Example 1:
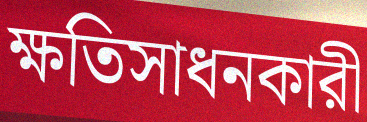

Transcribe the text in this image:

ক্ষতিসাধনকারী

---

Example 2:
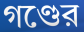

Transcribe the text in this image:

গণ্ডের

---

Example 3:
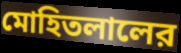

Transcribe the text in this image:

মোহিতলালের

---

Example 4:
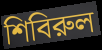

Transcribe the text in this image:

শিবিরুল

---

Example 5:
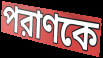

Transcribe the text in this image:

পরাণকে